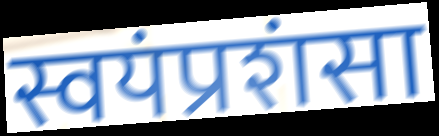
स्वयंप्रशंसा